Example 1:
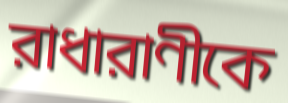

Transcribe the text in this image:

রাধারাণীকে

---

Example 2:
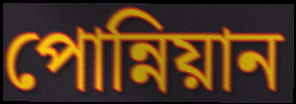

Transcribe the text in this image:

পোন্নিয়ান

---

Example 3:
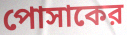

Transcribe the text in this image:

পোসাকের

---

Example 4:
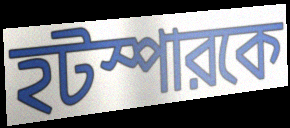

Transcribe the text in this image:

হটস্পারকে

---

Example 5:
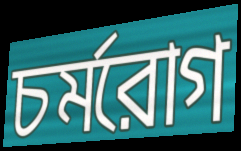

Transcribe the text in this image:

চর্মরোগ